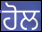
ਹੋਲ